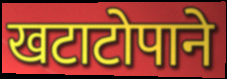
खटाटोपाने